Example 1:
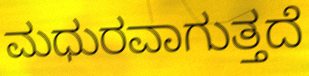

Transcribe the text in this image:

ಮಧುರವಾಗುತ್ತದೆ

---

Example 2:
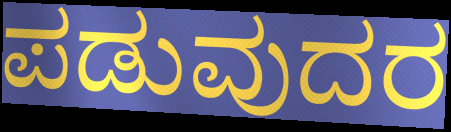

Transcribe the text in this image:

ಪಡುವುದರ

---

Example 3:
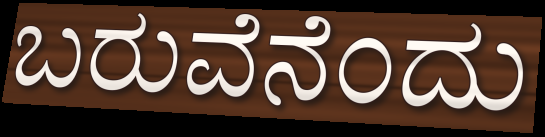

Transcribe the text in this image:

ಬರುವೆನೆಂದು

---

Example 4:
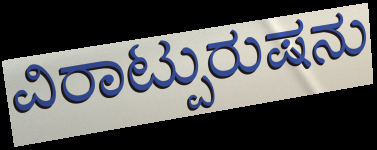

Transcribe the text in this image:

ವಿರಾಟ್ಪುರುಷನು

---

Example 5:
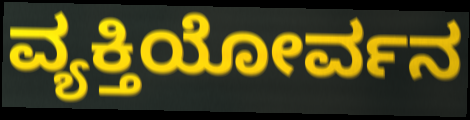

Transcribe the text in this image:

ವ್ಯಕ್ತಿಯೋರ್ವನ